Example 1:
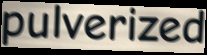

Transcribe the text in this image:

pulverized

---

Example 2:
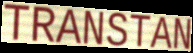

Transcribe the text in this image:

TRANSTAN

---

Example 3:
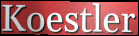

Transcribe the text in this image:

Koestler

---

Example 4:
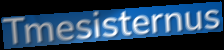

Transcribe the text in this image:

Tmesisternus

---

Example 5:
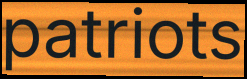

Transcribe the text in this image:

patriots